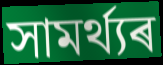
সামৰ্থ্যৰ